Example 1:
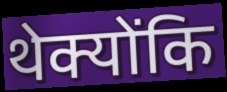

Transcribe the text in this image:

थेक्योंकि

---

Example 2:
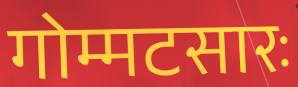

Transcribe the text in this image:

गोम्मटसारः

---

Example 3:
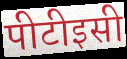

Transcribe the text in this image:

पीटीइसी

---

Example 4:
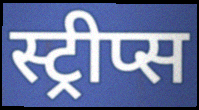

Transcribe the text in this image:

स्ट्रीप्स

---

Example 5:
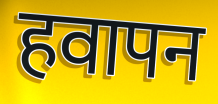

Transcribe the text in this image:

हवापन